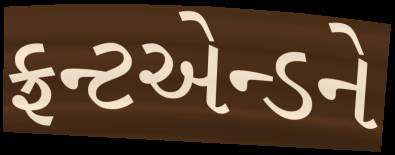
ફ્રન્ટએન્ડને